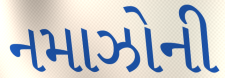
નમાઝોની